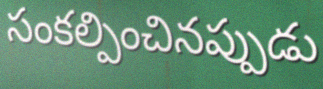
సంకల్పించినప్పుడు